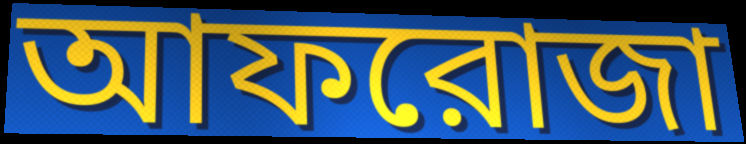
আফরোজা